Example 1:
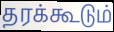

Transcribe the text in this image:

தரக்கூடும்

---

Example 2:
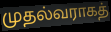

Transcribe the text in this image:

முதல்வராகத்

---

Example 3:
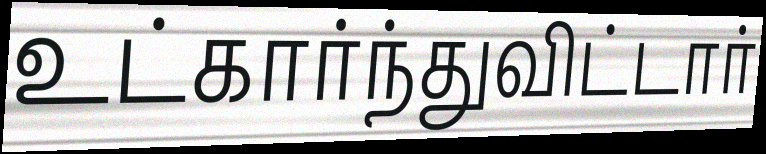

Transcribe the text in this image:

உட்கார்ந்துவிட்டார்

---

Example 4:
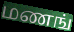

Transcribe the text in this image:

மணங்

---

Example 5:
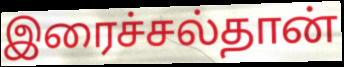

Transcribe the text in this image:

இரைச்சல்தான்